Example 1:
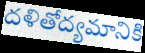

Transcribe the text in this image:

దళితోద్యమానికి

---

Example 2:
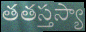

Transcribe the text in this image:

తతస్తస్యా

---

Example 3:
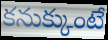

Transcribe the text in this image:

కనుక్కుంటే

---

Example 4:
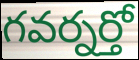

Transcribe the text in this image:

గవర్నర్తో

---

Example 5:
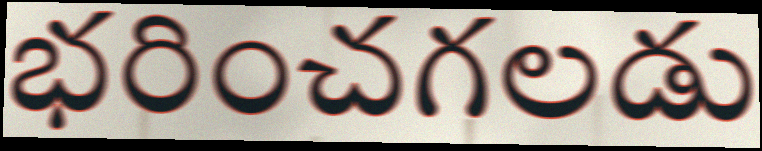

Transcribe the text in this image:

భరించగలడు